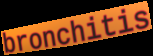
bronchitis